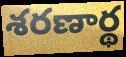
శరణార్థ